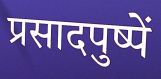
प्रसादपुष्पें